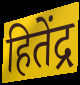
हितेंद्र